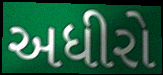
અધીરો